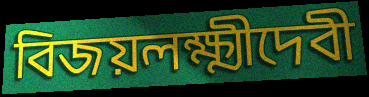
বিজয়লক্ষ্মীদেবী